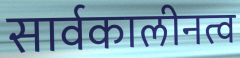
सार्वकालीनत्व